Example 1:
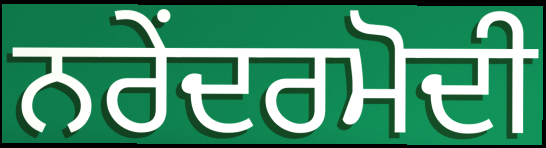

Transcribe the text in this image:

ਨਰੇਂਦਰਮੋਦੀ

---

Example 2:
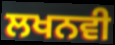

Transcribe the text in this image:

ਲਖਨਵੀ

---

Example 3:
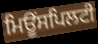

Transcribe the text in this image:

ਮਿਊਂਸਪਿਲਟੀ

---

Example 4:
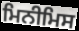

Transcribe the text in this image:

ਮਿਨੀਮਿਸ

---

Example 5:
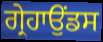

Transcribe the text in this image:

ਗ੍ਰੇਹਾਉਂਡਸ